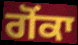
ਗੋਂਕਾ